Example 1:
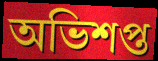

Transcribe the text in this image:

অভিশপ্ত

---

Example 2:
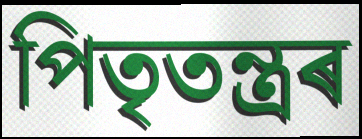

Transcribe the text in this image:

পিতৃতন্ত্ৰৰ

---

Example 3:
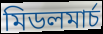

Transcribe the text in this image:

মিডলমাৰ্চ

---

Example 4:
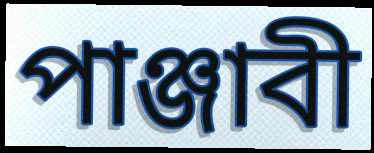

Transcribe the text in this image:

পাঞ্জাবী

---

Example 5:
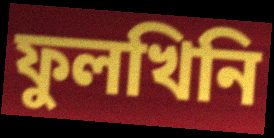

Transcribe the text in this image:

ফুলখিনি